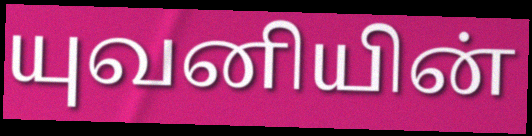
யுவனியின்